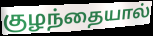
குழந்தையால்